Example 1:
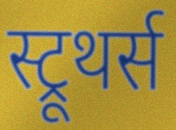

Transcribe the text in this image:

स्ट्रूथर्स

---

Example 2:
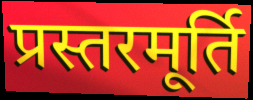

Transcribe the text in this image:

प्रस्तरमूर्ति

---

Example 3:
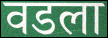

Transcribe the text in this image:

वडला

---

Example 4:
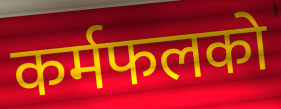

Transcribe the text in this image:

कर्मफलको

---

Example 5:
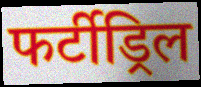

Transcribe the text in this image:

फर्टीड्रिल